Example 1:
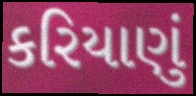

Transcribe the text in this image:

કરિયાણું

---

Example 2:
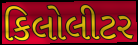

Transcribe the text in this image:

કિલોલીટર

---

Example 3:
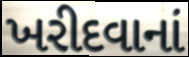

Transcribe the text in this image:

ખરીદવાનાં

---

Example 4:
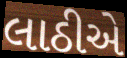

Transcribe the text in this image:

લાઠીએ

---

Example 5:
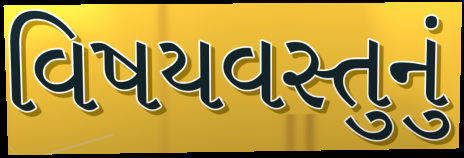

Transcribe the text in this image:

વિષયવસ્તુનું